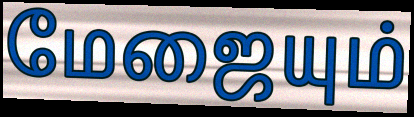
மேஜையும்